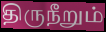
திருநீறும்